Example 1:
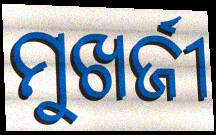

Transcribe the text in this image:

ମୁଖର୍ଜୀ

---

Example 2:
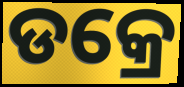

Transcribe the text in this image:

ଡକ୍ରେ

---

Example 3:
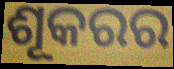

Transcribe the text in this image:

ଶୂକରର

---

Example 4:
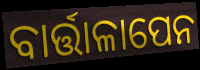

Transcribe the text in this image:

ବାର୍ତ୍ତାଳାପେନ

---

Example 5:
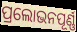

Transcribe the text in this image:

ପ୍ରଲୋଭନପୂର୍ଣ୍ଣ